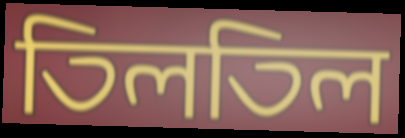
তিলতিল